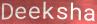
Deeksha